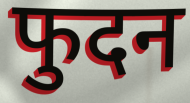
फुदन